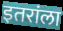
इतरांला